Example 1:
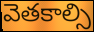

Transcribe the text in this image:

వెతకాల్సి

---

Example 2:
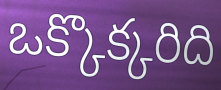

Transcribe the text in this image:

ఒక్కొక్కరిది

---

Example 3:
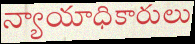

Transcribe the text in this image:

న్యాయాధికారులు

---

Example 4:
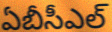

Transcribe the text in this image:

ఏబీసీఎల్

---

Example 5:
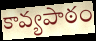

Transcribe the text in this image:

కావ్యపాఠం